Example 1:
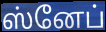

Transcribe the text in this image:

ஸ்னேப்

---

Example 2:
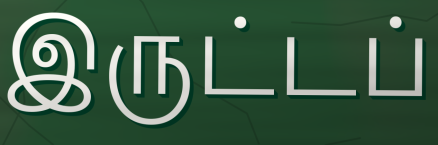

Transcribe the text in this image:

இருட்டப்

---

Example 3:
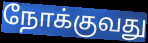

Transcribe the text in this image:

நோக்குவது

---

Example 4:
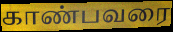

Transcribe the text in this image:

காண்பவரை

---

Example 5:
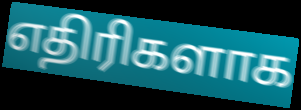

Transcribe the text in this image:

எதிரிகளாக